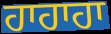
ਹਾਹਾਹਾ